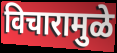
विचारामुळे